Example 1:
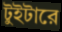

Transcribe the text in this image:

টুইটারে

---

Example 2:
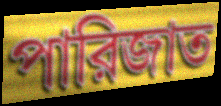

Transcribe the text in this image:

পারিজাত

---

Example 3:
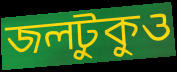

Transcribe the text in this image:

জলটুকুও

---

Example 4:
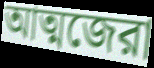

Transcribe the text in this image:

আত্মজেরা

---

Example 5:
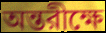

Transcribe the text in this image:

অন্তরীক্ষে